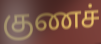
குணச்